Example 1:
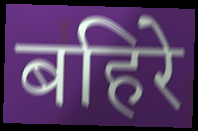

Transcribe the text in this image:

बहिरे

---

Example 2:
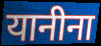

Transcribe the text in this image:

यानीना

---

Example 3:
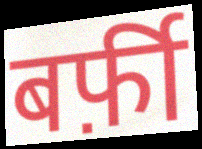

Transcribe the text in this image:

बर्फ़ी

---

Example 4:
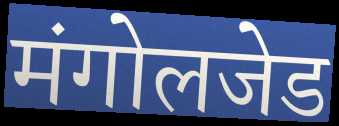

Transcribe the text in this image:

मंगोलजेड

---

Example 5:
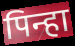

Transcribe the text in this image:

पिन्हा